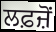
ਲਫ਼ਜ਼ੋਂ